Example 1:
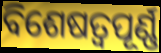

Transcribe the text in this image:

ବିଶେଷତ୍ୱପୂର୍ଣ୍ଣ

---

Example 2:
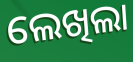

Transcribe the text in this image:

ଲେଖିଲା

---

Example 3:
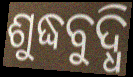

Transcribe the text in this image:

ଶୁଦ୍ଧବୁଦ୍ଧି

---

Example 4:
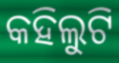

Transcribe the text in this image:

କହିଲୁଟି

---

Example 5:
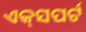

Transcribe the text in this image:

ଏକ୍‌ସପର୍ଟ